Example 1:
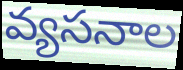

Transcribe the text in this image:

వ్యసనాల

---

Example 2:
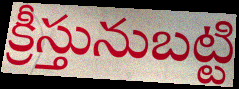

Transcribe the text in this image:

క్రీస్తునుబట్టి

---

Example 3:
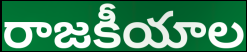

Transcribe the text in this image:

రాజకీయాల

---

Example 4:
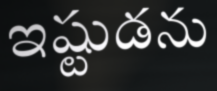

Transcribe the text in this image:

ఇష్టుడను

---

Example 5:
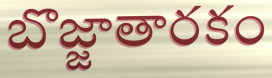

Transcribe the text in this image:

బొజ్జాతారకం